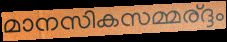
മാനസികസമ്മര്ദ്ദം